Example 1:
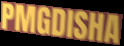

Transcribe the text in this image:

PMGDISHA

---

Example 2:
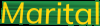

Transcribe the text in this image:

Marital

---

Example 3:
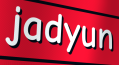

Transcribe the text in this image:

jadyun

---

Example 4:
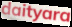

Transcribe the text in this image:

daityara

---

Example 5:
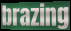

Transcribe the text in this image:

brazing